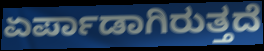
ಏರ್ಪಾಡಾಗಿರುತ್ತದೆ